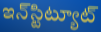
ఇన్‌స్టిట్యూట్